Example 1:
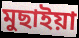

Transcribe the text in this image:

মুছাইয়া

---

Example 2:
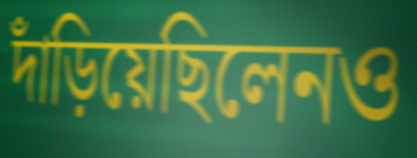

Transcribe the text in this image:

দাঁড়িয়েছিলেনও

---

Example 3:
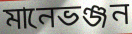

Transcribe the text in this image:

মানেভঞ্জন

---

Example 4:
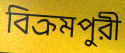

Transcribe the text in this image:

বিক্রমপুরী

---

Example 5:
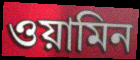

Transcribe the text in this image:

ওয়ামিন